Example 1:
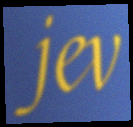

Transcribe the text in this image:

jev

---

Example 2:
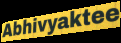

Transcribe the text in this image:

Abhivyaktee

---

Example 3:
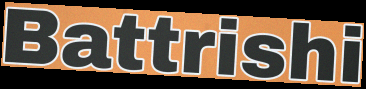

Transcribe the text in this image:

Battrishi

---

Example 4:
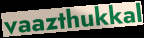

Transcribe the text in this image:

vaazthukkal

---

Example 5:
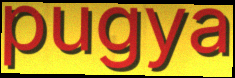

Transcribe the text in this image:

pugya